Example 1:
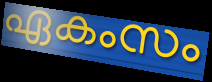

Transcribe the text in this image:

ഏകംസം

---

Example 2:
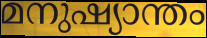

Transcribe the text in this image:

മനുഷ്യാന്തം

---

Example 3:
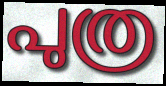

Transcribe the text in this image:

പുത്ര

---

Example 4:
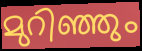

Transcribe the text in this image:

മുറിഞ്ഞും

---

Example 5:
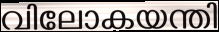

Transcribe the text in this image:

വിലോകയന്തി